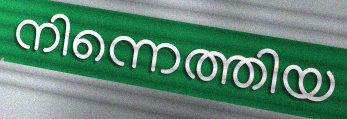
നിന്നെത്തിയ